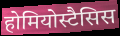
होमियोस्टैसिस